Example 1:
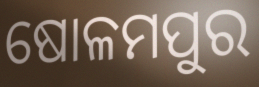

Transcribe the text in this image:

ଷୋଳମପୁର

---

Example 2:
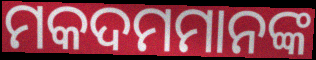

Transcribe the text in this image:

ମକଦମମାନଙ୍କ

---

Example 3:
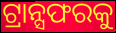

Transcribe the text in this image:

ଟ୍ରାନ୍ସଫରକୁ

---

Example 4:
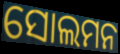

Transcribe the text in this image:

ସୋଲମନ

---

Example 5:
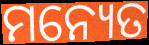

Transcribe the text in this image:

ମନ୍ୟେତ